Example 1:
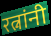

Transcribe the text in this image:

रत्नांनी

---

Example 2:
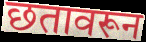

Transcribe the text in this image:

छतावरून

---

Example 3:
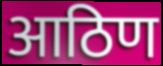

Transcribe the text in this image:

आठिण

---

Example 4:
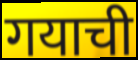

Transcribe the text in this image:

गयाची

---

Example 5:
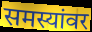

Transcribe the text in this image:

समस्यांवर